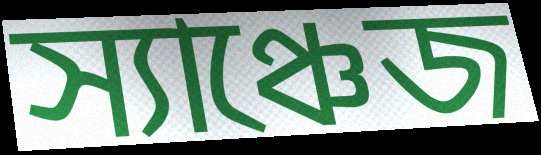
স্যাঞ্চেজ